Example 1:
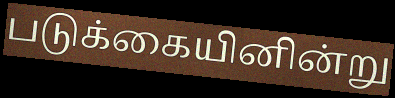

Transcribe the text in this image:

படுக்கையினின்று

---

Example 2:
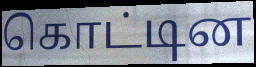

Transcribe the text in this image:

கொட்டின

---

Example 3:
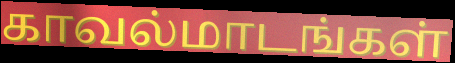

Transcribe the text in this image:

காவல்மாடங்கள்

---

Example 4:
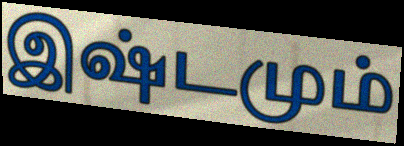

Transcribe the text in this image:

இஷ்டமும்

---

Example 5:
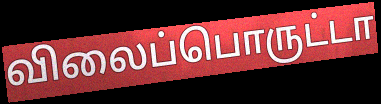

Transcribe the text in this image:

விலைப்பொருட்டா